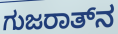
ಗುಜರಾತ್‍ನ